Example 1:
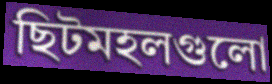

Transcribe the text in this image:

ছিটমহলগুলো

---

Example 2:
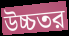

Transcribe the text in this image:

উচ্চতর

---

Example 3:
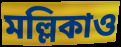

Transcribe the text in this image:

মল্লিকাও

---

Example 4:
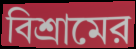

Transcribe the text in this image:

বিশ্রামের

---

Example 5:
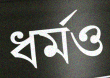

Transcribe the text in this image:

ধর্মও